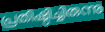
പ്രതിഷ്ഠിച്ചിരുന്നു